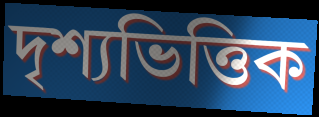
দৃশ্যভিত্তিক